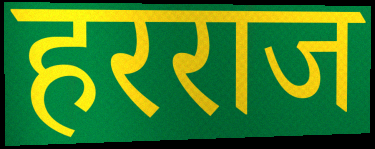
हरराज